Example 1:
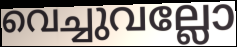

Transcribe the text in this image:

വെച്ചുവല്ലോ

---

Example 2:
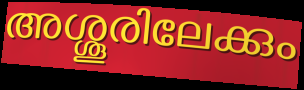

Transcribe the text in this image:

അശ്ശൂരിലേക്കും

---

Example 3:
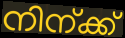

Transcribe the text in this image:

നിന്ക്ക്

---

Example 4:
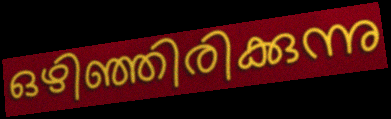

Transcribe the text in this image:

ഒഴിഞ്ഞിരിക്കുന്നു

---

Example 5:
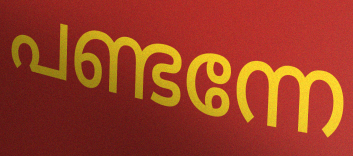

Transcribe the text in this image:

പണ്ടന്നേ